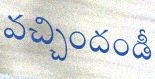
వచ్చిందండీ